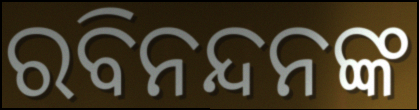
ରବିନନ୍ଦନଙ୍କ